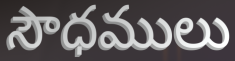
సౌధములు